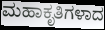
ಮಹಾಕೃತಿಗಳಾದ